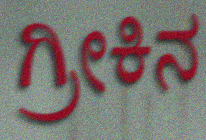
ಗ್ರೀಕಿನ